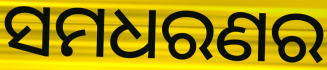
ସମଧରଣର